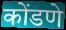
कोंडणे